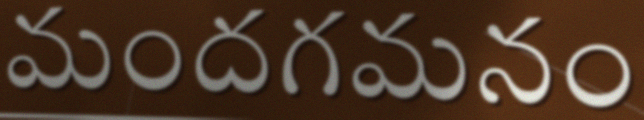
మందగమనం